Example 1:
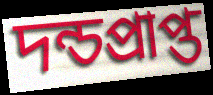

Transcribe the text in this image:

দন্ডপ্রাপ্ত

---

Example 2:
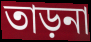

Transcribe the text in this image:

তাড়না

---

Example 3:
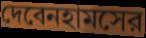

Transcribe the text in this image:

দেবেনহামসের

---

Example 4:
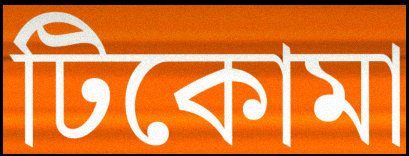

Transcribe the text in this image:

টিকোমা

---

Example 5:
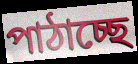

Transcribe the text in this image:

পাঠাচ্ছে